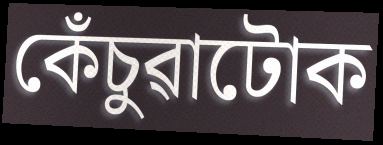
কেঁচুৱাটোক